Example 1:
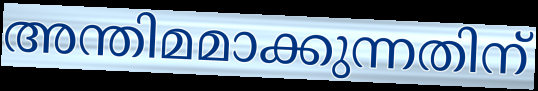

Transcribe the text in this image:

അന്തിമമാക്കുന്നതിന്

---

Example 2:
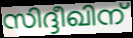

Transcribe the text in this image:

സിദ്ദീഖിന്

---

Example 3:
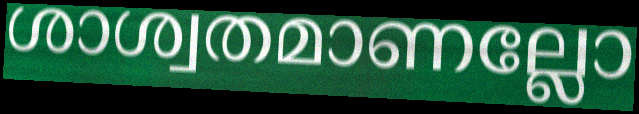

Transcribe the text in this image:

ശാശ്വതമാണല്ലോ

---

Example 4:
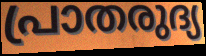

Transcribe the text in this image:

പ്രാതരുദ്യ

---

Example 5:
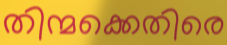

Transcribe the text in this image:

തിന്മക്കെതിരെ